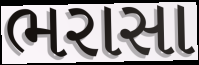
ભરાસા